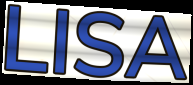
LISA